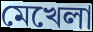
মেখেলা